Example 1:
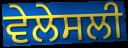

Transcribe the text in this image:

ਵੇਲੇਸਲੀ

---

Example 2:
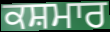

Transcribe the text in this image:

ਕਸ਼ਮਾਰ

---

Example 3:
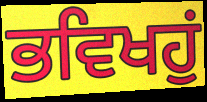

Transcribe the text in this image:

ਭਵਿਖਹੁਂ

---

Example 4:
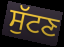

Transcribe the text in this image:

ਸੁੱਟਣ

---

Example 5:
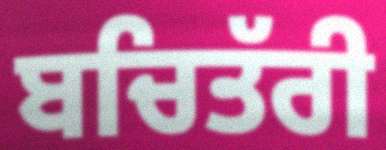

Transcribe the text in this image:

ਬਚਿਤੱਰੀ